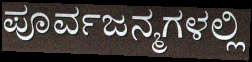
ಪೂರ್ವಜನ್ಮಗಳಲ್ಲಿ